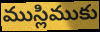
ముస్లిముకు